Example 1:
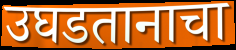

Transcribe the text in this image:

उघडतानाचा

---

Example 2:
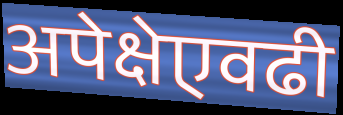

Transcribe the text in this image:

अपेक्षेएवढी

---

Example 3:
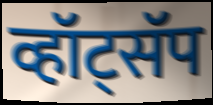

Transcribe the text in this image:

व्हॉट्सॅप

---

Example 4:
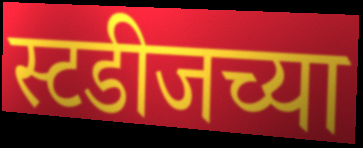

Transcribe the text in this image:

स्टडीजच्या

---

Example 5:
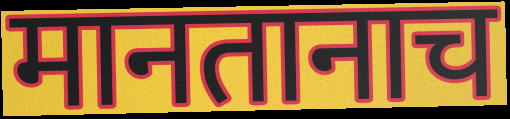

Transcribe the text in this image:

मानतानाच